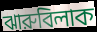
ঝাৰুবিলাক